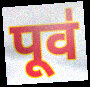
पूव॑